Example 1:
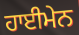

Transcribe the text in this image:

ਹਾਈਮੇਨ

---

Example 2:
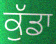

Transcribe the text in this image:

ਕੁੱਡਾ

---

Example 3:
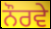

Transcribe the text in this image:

ਨੌਰਵੇ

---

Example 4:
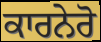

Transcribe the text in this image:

ਕਾਰਨੇਰੋ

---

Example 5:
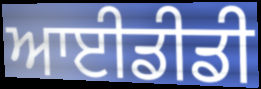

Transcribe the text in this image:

ਆਈਡੀਡੀ